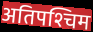
अतिपश्चिम